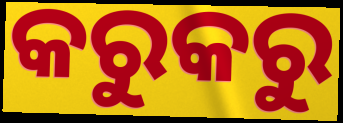
କରୁକରୁ